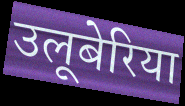
उलूबेरिया